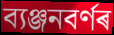
ব্যঞ্জনবৰ্ণৰ